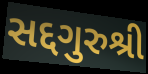
સદ્દગુરુશ્રી